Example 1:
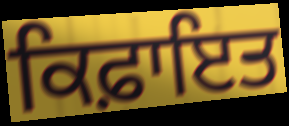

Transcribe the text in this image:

ਕਿਫ਼ਾਇਤ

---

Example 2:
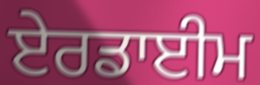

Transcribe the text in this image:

ਏਰਡਾਈਮ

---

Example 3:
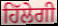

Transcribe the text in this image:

ਹਿੱਲੇਗੀ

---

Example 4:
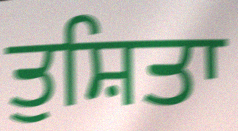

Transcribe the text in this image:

ਤੁਸ਼ਿਤਾ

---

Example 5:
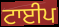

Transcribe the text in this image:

ਟਾਈਪ